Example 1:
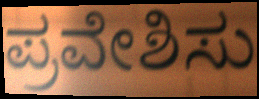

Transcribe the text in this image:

ಪ್ರವೇಶಿಸು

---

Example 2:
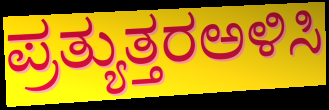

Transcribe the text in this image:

ಪ್ರತ್ಯುತ್ತರಅಳಿಸಿ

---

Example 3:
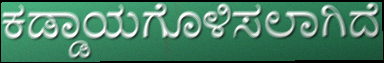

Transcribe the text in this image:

ಕಡ್ಡಾಯಗೊಳಿಸಲಾಗಿದೆ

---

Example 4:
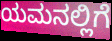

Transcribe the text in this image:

ಯಮನಲ್ಲಿಗೆ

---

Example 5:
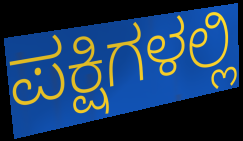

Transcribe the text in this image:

ಪಕ್ಷಿಗಳಲ್ಲಿ